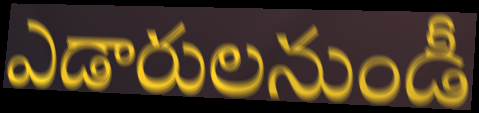
ఎడారులనుండీ